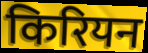
किरियन